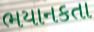
ભયાનકતા